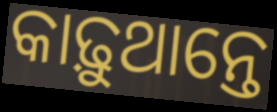
କାଢ଼ୁଥାନ୍ତେ